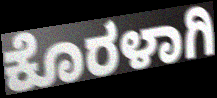
ಕೊರಳಾಗಿ